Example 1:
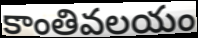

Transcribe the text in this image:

కాంతివలయం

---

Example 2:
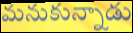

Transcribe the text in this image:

మనుకున్నాడు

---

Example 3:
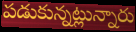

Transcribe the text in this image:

పడుకున్నట్లున్నారు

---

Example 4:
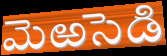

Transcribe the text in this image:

మెఱసెడి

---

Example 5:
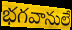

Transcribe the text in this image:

భగవానులే